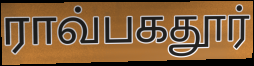
ராவ்பகதூர்